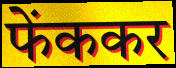
फेंककर